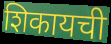
शिकायची